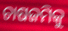
ଚାଷଜମିକୁ